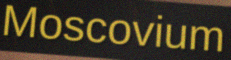
Moscovium